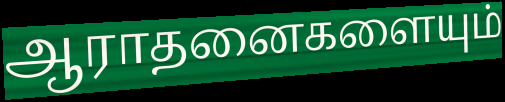
ஆராதனைகளையும்